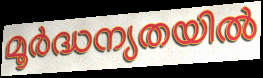
മൂർദ്ധന്യതയിൽ